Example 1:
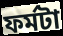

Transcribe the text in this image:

ফর্মটা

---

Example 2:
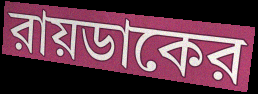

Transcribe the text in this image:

রায়ডাকের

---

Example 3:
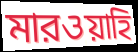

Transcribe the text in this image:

মারওয়াহি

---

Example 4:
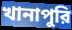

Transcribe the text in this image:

খানাপুরি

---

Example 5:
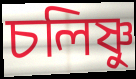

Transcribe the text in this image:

চলিষ্ণু